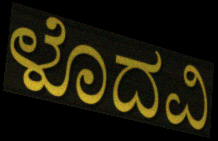
ಳೊದವಿ